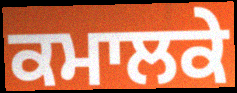
ਕਮਾਲਕੇ